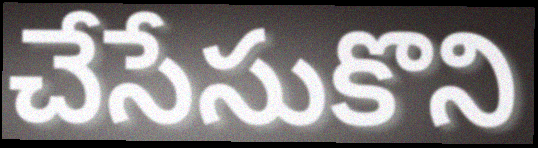
చేసేసుకొని